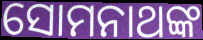
ସୋମନାଥଙ୍କ